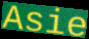
Asie